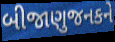
બીજાણુજનકને